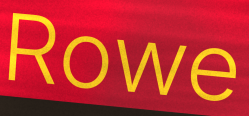
Rowe